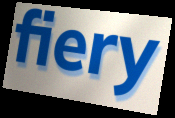
fiery